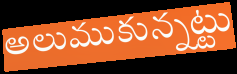
అలుముకున్నట్టు